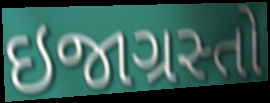
ઇજાગ્રસ્તો